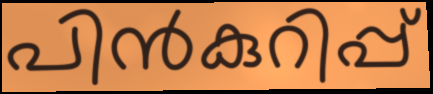
പിൻകുറിപ്പ്